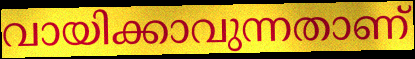
വായിക്കാവുന്നതാണ്